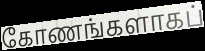
கோணங்களாகப்